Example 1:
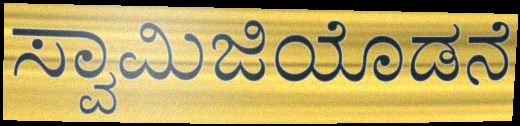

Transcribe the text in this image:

ಸ್ವಾಮಿಜಿಯೊಡನೆ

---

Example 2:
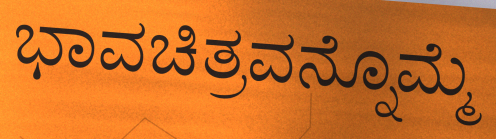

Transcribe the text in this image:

ಭಾವಚಿತ್ರವನ್ನೊಮ್ಮೆ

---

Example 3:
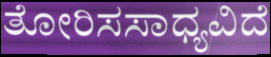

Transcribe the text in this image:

ತೋರಿಸಸಾಧ್ಯವಿದೆ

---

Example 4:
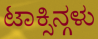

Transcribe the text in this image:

ಟಾಕ್ಸಿನ್ಗಳು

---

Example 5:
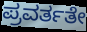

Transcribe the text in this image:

ಪ್ರವರ್ತತೇ